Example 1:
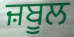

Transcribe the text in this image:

ਜ਼ਬੂਲ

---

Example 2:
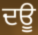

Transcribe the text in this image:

ਦਊ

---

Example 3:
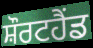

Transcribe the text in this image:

ਸ਼ੌਰਟਹੈਂਡ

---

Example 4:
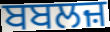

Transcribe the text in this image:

ਬਬਲਜ਼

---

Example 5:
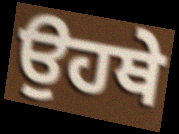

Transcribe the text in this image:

ਉਹਥੇ